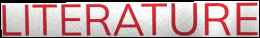
LITERATURE